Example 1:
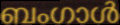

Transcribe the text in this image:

ബംഗാൾ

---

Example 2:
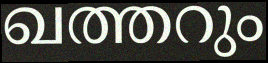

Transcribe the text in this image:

ഖത്തറും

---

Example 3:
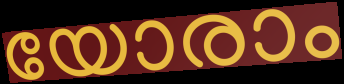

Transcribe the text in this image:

യോരാം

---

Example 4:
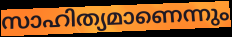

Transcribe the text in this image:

സാഹിത്യമാണെന്നും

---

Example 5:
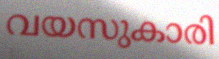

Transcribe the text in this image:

വയസുകാരി